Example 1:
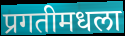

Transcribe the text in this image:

प्रगतीमधला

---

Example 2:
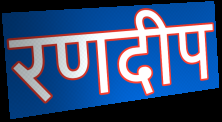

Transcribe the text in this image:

रणदीप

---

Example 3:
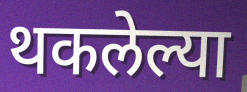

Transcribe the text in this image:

थकलेल्या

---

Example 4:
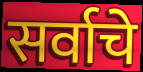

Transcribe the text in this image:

सर्वाचे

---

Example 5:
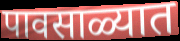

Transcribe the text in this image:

पावसाळ्यात